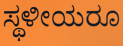
ಸ್ಥಳೀಯರೂ